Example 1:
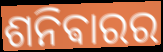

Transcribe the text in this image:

ଶନିଵାରର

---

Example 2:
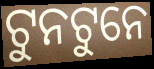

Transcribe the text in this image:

ଟୁନଟୁନେ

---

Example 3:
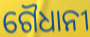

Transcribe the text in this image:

ଗୈଧାନୀ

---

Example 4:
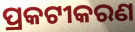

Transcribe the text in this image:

ପ୍ରକଟୀକରଣ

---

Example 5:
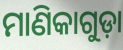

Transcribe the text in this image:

ମାଣିକାଗୁଡ଼ା